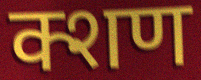
क्शण